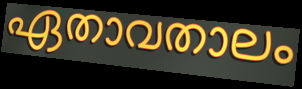
ഏതാവതാലം